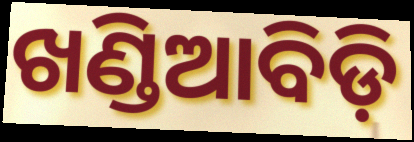
ଖଣ୍ଡିଆବିଡ଼ି